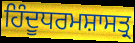
ਹਿੰਦੂਧਰਮਸ਼ਾਸਤ੍ਰ